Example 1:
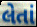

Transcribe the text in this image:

લેતાં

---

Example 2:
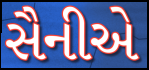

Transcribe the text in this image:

સૈનીએ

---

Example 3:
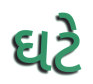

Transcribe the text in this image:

ઘટે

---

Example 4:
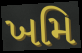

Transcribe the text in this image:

ખમિ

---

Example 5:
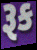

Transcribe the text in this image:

રૂક